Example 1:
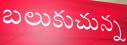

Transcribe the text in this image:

బలుకుచున్న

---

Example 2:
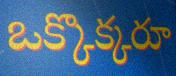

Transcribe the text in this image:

ఒక్కొక్కరూ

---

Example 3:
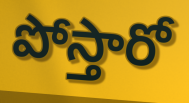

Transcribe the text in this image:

పోస్తారో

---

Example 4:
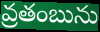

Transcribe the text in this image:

వ్రతంబును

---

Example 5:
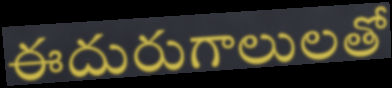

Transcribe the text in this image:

ఈదురుగాలులతో